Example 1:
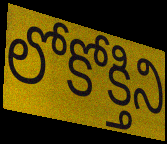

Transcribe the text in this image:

లోకోక్తిని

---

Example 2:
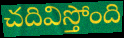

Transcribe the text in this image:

చదివిస్తోంది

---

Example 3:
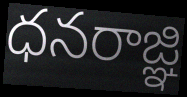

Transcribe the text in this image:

ధనరాజ్ఞి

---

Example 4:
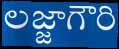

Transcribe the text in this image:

లజ్జాగౌరి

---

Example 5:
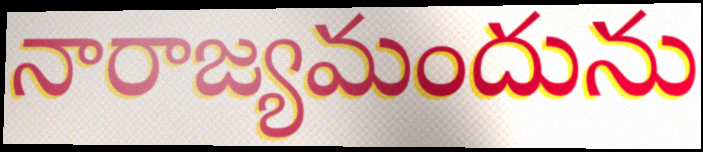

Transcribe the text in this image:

నారాజ్యమందును